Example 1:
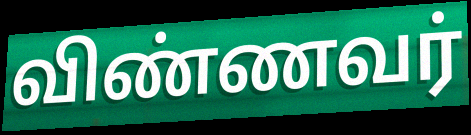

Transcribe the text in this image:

விண்ணவர்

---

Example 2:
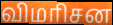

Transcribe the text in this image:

விமரிசன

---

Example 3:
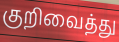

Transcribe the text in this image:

குறிவைத்து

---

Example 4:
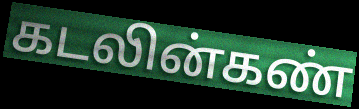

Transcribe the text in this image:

கடலின்கண்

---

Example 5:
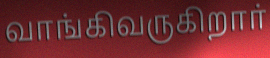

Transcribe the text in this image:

வாங்கிவருகிறார்